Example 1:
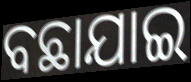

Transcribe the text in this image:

ବଛାଯାଇ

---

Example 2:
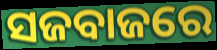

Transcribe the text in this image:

ସଜବାଜରେ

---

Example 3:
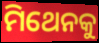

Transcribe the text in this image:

ମିଥେନକୁ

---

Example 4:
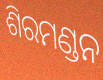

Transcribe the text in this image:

ଶିରମଣ୍ଡନ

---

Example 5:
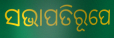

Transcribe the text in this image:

ସଭାପତିରୂପେ